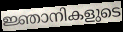
ജ്ഞാനികളുടെ